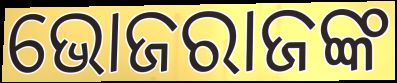
ଭୋଜରାଜଙ୍କ